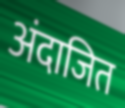
अंदाजित